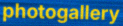
photogallery